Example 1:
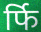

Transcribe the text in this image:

र्फि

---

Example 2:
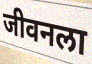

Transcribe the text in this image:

जीवनला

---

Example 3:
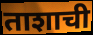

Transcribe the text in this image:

ताशाची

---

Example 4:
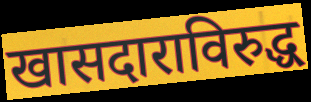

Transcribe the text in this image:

खासदाराविरुद्ध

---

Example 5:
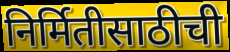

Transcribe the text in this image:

निर्मितीसाठीची